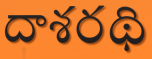
దాశరథి